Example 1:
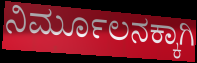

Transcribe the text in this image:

ನಿರ್ಮೂಲನಕ್ಕಾಗಿ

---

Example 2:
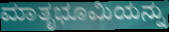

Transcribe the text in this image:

ಮಾತೃಭೂಮಿಯನ್ನು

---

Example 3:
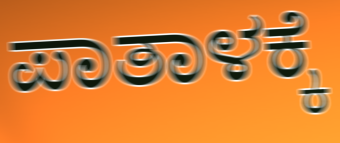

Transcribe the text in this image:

ಪಾತಾಳಕ್ಕೆ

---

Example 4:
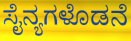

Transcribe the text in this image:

ಸೈನ್ಯಗಳೊಡನೆ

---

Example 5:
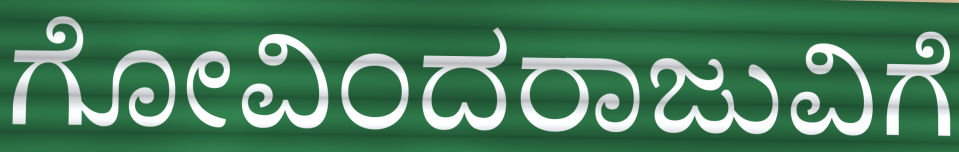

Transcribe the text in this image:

ಗೋವಿಂದರಾಜುವಿಗೆ